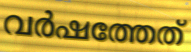
വർഷത്തേത്